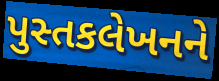
પુસ્તકલેખનને